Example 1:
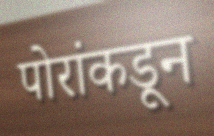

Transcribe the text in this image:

पोरांकडून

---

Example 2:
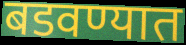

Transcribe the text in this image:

बडवण्यात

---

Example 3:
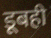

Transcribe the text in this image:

डूबही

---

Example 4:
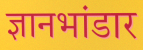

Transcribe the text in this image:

ज्ञानभांडार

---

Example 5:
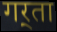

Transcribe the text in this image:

गर्ता